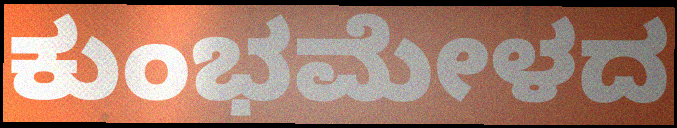
ಕುಂಭಮೇಳದ